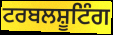
ਟਰਬਲਸ਼ੂਟਿੰਗ